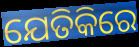
ଯେତିକିରେ